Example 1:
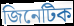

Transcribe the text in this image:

জিনেটিক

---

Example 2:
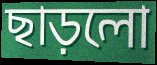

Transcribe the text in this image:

ছাড়লো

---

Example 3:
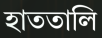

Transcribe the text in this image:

হাততালি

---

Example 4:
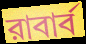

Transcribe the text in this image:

রাবার্ব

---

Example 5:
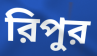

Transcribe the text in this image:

রিপুর